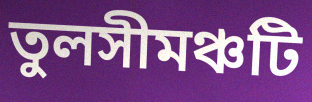
তুলসীমঞ্চটি